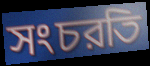
সংচরতি